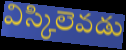
విస్కిలెవడు